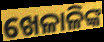
ଖେଳାଳିଙ୍କ